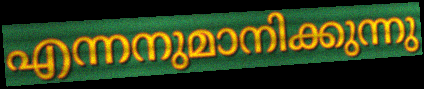
എന്നനുമാനിക്കുന്നു